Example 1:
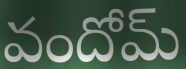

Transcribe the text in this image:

వందోమ్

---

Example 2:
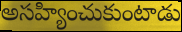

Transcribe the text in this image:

అసహ్యించుకుంటాడు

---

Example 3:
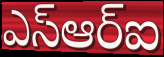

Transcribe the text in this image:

ఎస్ఆర్ఐ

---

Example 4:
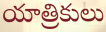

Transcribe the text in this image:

యాత్రికులు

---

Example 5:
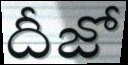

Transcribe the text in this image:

దీజో